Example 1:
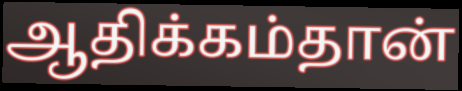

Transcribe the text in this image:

ஆதிக்கம்தான்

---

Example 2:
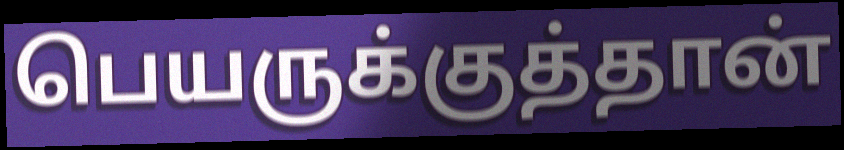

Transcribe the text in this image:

பெயருக்குத்தான்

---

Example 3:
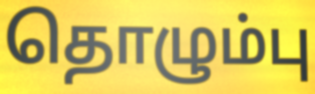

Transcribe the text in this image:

தொழும்பு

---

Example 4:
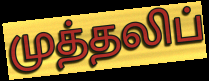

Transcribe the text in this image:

முத்தலிப்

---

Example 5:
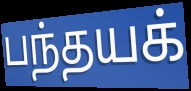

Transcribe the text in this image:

பந்தயக்